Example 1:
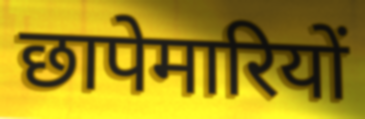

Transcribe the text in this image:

छापेमारियों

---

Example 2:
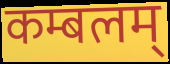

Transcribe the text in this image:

कम्बलम्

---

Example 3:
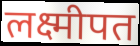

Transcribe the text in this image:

लक्ष्मीपत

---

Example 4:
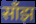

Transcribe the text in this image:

साँझ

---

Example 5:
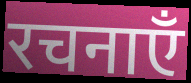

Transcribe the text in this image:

रचनाएँ